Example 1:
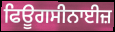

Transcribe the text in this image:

ਫਿਊਗਸੀਨਾਈਜ਼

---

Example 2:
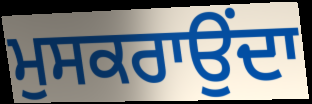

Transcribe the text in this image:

ਮੁਸਕਰਾਉਂਦਾ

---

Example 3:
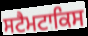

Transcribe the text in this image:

ਸਟੈਮਟਾਕਿਸ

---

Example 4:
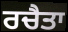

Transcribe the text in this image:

ਰਚੈਤਾ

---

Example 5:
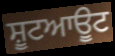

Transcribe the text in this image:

ਸ਼ੂਟਆਊਟ